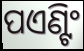
ପଏଣ୍ଟିଂ